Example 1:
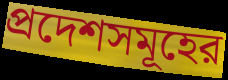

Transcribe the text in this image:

প্রদেশসমূহের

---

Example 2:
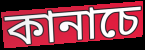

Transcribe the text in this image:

কানাচে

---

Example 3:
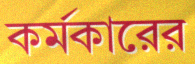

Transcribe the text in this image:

কর্মকারের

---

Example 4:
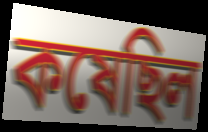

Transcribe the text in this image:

কষেছিল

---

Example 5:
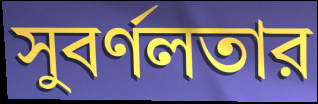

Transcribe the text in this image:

সুবর্ণলতার